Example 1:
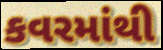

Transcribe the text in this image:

કવરમાંથી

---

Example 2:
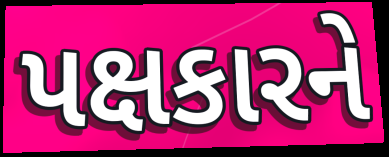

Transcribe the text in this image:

પક્ષકારને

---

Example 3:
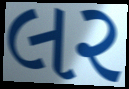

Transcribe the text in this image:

લર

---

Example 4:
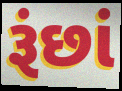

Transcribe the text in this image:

રૂંછાં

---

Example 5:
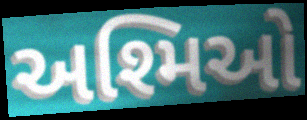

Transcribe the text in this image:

અશ્મિઓ